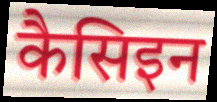
कैसिइन